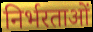
निर्भरताओं